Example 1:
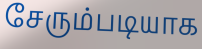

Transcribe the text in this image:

சேரும்படியாக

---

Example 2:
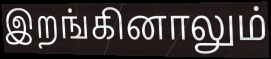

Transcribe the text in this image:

இறங்கினாலும்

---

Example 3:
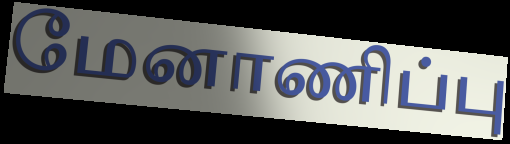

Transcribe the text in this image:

மேனாணிப்பு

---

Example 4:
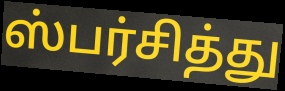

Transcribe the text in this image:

ஸ்பர்சித்து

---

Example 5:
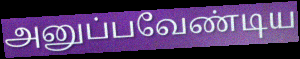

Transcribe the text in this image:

அனுப்பவேண்டிய